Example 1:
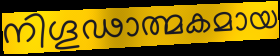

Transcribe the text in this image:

നിഗൂഢാത്മകമായ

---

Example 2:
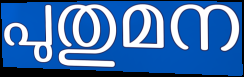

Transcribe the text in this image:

പുതുമന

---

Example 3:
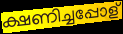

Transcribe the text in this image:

ക്ഷണിച്ചപ്പോള്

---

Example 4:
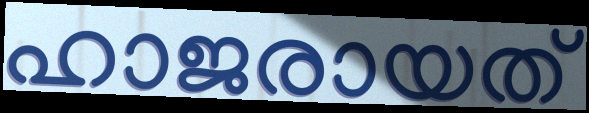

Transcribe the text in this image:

ഹാജരായത്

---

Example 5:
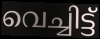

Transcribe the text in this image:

വെച്ചിട്ട്